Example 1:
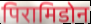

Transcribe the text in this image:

पिरामिडोन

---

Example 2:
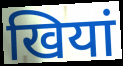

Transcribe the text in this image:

खियां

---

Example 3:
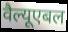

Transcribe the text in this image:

वैल्यूएबल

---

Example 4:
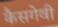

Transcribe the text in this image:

कैसगेवी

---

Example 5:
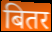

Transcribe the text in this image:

बितर